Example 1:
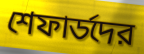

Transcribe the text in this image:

শেফার্ডদের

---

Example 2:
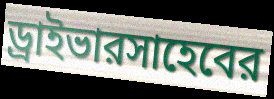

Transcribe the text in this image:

ড্রাইভারসাহেবের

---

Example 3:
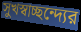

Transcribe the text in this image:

সুখস্বাচ্ছন্দ্যের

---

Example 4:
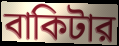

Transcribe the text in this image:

বাকিটার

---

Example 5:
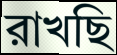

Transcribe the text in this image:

রাখছি